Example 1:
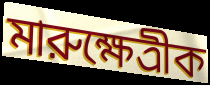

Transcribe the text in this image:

মাৰুক্ষেত্ৰীক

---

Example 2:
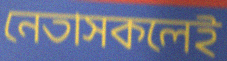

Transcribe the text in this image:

নেতাসকলেই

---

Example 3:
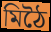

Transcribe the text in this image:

মিঠৈ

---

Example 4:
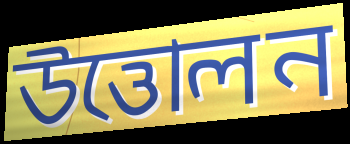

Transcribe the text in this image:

উত্তোলন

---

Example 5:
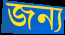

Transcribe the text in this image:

জন্য